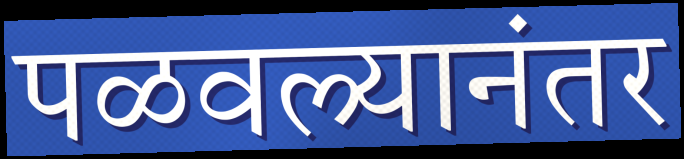
पळवल्यानंतर